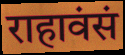
राहावंसं